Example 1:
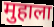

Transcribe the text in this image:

मुहाला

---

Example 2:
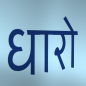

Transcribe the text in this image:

धारो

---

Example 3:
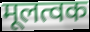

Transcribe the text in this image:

मूलत्वक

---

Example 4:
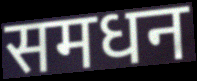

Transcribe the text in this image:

समधन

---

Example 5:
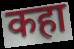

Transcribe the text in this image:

कहा